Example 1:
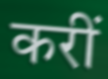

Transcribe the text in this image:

करीं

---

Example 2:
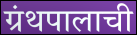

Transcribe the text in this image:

ग्रंथपालाची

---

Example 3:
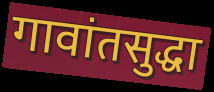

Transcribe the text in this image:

गावांतसुद्धा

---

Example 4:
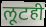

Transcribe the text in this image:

लूटही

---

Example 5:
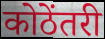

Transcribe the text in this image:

कोठेंतरी